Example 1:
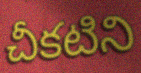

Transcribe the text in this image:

చీకటిని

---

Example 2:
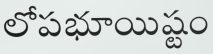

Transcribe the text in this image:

లోపభూయిష్టం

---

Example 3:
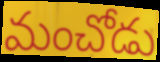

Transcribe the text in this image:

మంచోడు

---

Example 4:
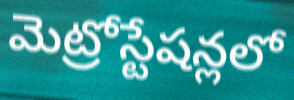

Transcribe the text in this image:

మెట్రోస్టేషన్లలో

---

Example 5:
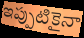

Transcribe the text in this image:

ఇప్పుటికైనా